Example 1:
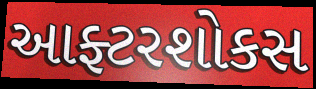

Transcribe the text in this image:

આફ્ટરશોકસ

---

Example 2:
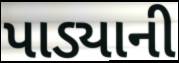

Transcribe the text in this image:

પાડ્યાની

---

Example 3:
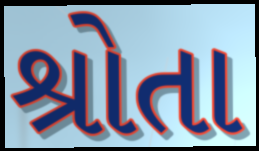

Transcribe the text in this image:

શ્રોતા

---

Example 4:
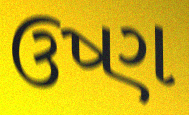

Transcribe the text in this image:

ઉષ્ણ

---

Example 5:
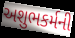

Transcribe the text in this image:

અશુભકર્મની